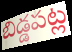
బిడ్డపట్ల